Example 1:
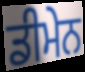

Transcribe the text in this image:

ਡੀਮੇਨ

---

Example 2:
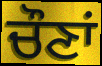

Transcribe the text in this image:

ਚੌਣਾਂ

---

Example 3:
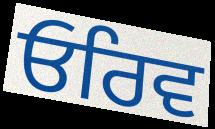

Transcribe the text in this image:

ਓਰਿਵ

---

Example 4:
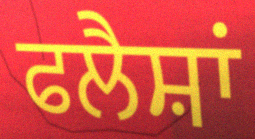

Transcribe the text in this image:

ਫਲੈਸ਼ਾਂ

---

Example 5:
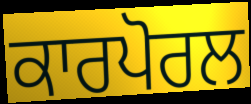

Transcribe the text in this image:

ਕਾਰਪੋਰਲ